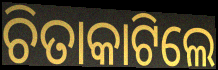
ଚିତାକାଟିଲେ